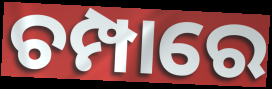
ଚମ୍ପାରେ